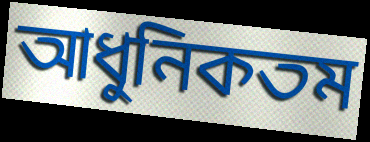
আধুনিকতম